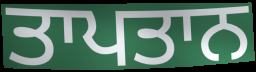
ਤਾਪਤਾਨ